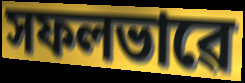
সফলভাৱে